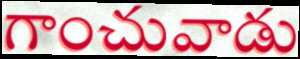
గాంచువాడు